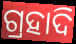
ଗ୍ରହାଦି